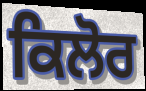
ਕਿਲੋਰ